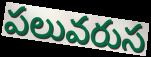
పలువరుస